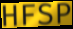
HFSP